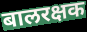
बालरक्षक